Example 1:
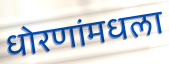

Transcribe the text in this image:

धोरणांमधला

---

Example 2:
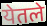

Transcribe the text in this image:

येतले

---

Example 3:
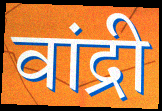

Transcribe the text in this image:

वांद्री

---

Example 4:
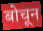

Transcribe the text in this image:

बोचून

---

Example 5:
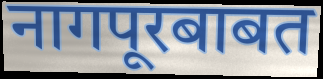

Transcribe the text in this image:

नागपूरबाबत